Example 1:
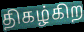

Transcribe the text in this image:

திகழ்கிற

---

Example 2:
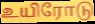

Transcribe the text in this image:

உயிரோடு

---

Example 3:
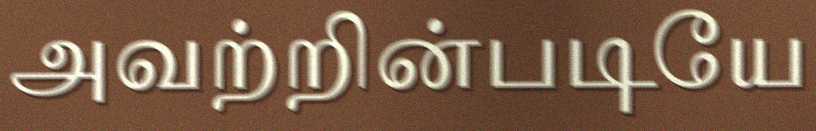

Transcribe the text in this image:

அவற்றின்படியே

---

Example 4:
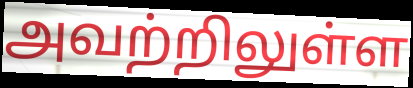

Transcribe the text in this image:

அவற்றிலுள்ள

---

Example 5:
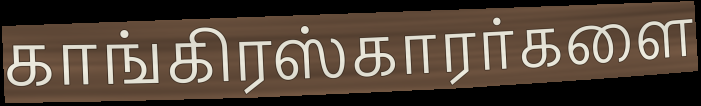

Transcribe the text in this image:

காங்கிரஸ்காரர்களை